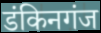
डंकिनगंज